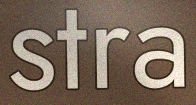
stra